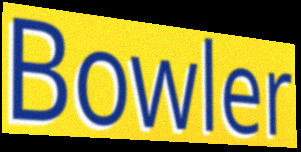
Bowler